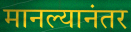
मानल्यानंतर